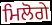
ਮਿਲੋਗੇ